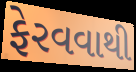
ફેરવવાથી